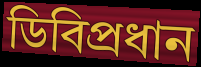
ডিবিপ্রধান